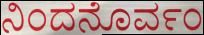
ನಿಂದನೊರ್ವಂ